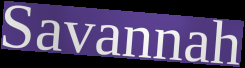
Savannah